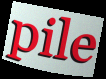
pile